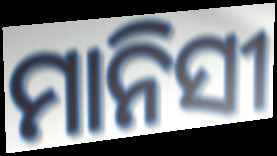
ମାନିସୀ